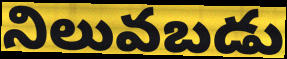
నిలువబడు